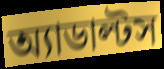
অ্যাডাল্টস